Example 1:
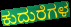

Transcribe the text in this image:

ಕುದುರೆಗಳ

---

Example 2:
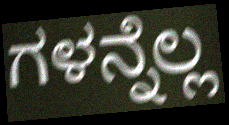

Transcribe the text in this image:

ಗಳನ್ನೆಲ್ಲ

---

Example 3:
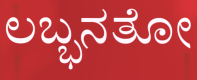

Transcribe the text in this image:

ಲಬ್ಭನತೋ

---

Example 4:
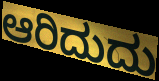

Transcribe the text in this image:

ಆರಿದುದು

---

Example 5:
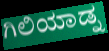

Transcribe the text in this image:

ಗಿಲಿಯಾಡ್ನ